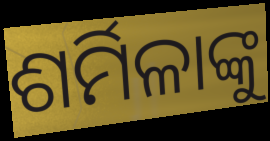
ଶର୍ମିଳାଙ୍କୁ